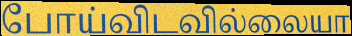
போய்விடவில்லையா